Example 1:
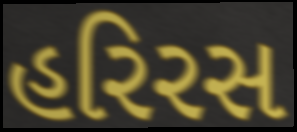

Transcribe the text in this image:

હરિરસ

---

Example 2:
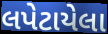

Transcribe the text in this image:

લપેટાયેલા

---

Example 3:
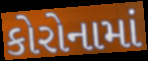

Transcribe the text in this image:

કોરોનામાં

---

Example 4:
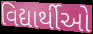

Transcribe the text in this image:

વિદ્યાર્થીઓ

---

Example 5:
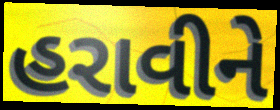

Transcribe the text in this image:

હરાવીને